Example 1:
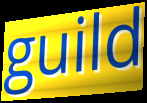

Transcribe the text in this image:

guild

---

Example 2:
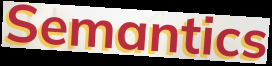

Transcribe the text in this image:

Semantics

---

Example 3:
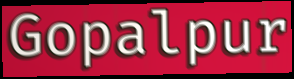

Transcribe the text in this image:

Gopalpur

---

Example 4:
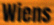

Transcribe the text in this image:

Wiens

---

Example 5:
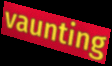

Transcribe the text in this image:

vaunting